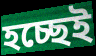
হচ্ছেই